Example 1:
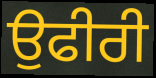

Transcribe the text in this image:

ਉਫੀਰੀ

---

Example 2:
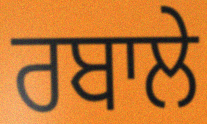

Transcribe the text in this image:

ਰਬਾਲੇ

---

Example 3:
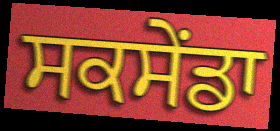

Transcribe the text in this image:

ਸਕਸੇਂਡਾ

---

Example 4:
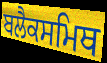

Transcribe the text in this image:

ਬਲੈਕਸਮਿਥ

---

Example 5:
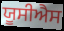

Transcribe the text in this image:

ਯੂਸੀਐਸ